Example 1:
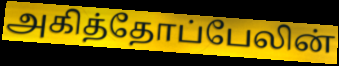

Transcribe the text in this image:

அகித்தோப்பேலின்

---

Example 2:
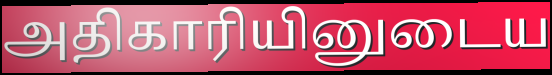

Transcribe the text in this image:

அதிகாரியினுடைய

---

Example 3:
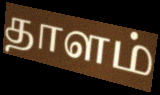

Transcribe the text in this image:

தாளம்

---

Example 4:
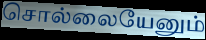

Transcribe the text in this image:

சொல்லையேனும்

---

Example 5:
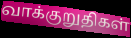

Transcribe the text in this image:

வாக்குறுதிகள்